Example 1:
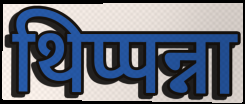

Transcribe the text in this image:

थिप्पन्ना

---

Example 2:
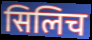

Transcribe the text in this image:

सिलिच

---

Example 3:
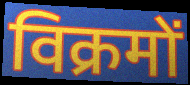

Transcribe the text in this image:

विक्रमों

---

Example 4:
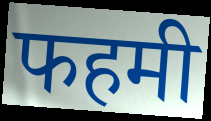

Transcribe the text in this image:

फहमी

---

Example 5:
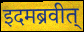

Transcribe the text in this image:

इदमब्रवीत्